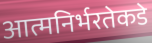
आत्मनिर्भरतेकडे